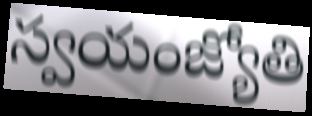
స్వయంజ్యోతి